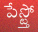
పేస్ట్తో